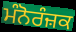
ਮੰਨੋਰੰਜ਼ਕ